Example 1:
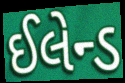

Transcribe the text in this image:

ઈલેન્ડ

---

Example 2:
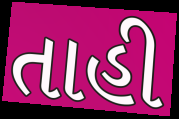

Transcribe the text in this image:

તાહી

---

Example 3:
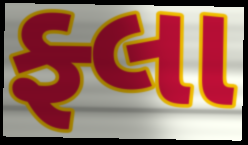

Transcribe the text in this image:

ફ્લા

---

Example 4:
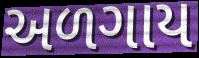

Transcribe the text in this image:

અળગાય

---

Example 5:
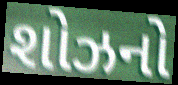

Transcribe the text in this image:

શોઝનો